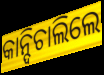
କାନ୍ଦିଚାଲିଲେ